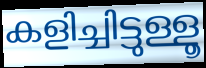
കളിച്ചിട്ടുള്ളൂ